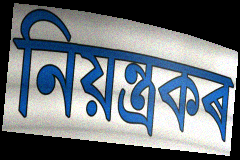
নিয়ন্ত্ৰকৰ